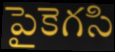
పైకెగసి